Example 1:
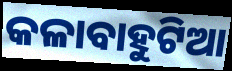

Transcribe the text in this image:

କଳାବାହୁଟିଆ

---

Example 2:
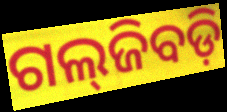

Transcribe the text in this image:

ଗଲ୍‌ଜିବଡ଼ି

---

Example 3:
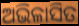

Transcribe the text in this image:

ଅଭିଳାସିତ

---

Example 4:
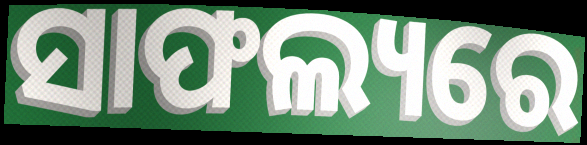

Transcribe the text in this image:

ସାଫଲ୍ୟରେ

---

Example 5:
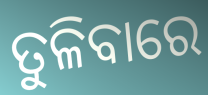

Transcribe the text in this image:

ତୁଳିବାରେ